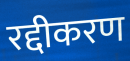
रद्दीकरण